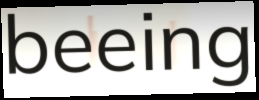
beeing